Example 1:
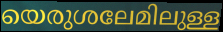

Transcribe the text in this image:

യെരുശലേമിലുള്ള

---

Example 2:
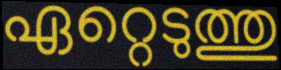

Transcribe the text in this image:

ഏറ്റെടുത്തു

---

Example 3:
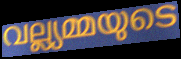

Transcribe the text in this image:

വല്ല്യമ്മയുടെ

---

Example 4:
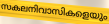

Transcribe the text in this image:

സകലനിവാസികളെയും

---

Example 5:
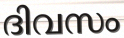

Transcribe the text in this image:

ദിവസം